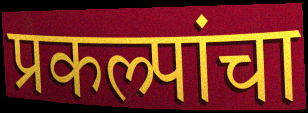
प्रकल्पांचा